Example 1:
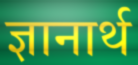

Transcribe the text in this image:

ज्ञानार्थ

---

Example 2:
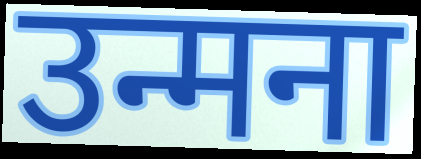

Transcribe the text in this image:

उन्मना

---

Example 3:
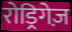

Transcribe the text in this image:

रोड्रिगेज़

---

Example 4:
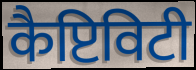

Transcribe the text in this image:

कैप्टिविटी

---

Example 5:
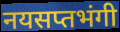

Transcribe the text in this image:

नयसप्तभंगी